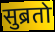
सुब्रतो